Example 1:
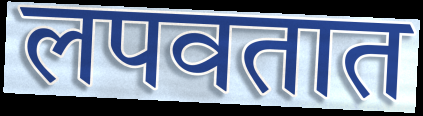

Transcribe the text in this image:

लपवतात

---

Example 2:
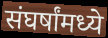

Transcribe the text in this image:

संघर्षांमध्ये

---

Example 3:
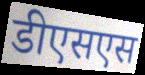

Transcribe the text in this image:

डीएसएस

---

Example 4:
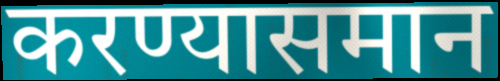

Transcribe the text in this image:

करण्यासमान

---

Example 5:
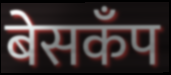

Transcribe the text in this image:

बेसकँप